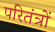
परितंत्रों